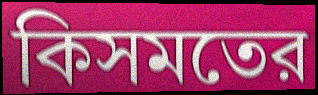
কিসমতের